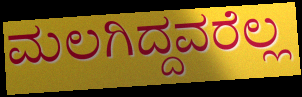
ಮಲಗಿದ್ದವರೆಲ್ಲ